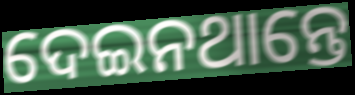
ଦେଇନଥାନ୍ତେ